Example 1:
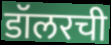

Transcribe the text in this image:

डॉलरची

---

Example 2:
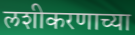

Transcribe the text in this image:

लशीकरणाच्या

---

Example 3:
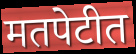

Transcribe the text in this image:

मतपेटीत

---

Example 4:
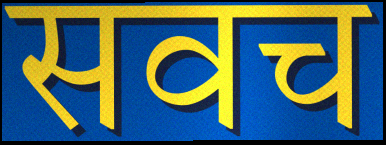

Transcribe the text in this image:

सवच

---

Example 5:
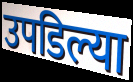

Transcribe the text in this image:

उपडिल्या